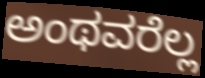
ಅಂಥವರೆಲ್ಲ